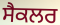
ਸੈਕਲਰ